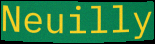
Neuilly